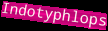
Indotyphlops